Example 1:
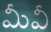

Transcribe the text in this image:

మీవీ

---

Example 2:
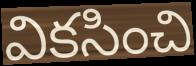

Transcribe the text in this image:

వికసించి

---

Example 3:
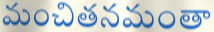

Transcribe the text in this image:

మంచితనమంతా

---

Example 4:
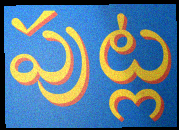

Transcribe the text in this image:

పుట్ల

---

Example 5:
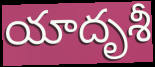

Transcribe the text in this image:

యాదృశీ